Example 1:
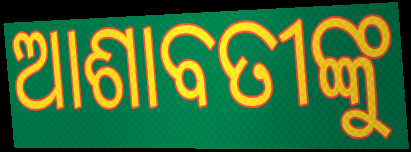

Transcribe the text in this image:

ଆଶାବତୀଙ୍କୁ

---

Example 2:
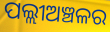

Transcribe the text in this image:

ପଲ୍ଲୀଅଞ୍ଚଳର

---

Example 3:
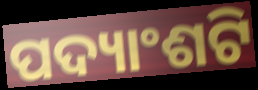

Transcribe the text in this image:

ପଦ୍ୟାଂଶଟି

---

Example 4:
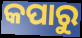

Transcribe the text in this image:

କପାରୁ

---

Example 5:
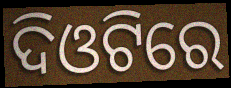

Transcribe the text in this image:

ଦିଓଟିରେ